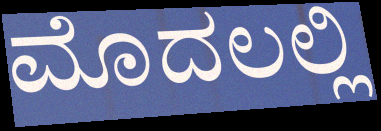
ಮೊದಲಲ್ಲಿ